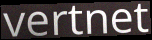
vertnet